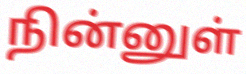
நின்னுள்